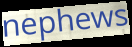
nephews